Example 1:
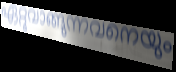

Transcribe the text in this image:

ഏറ്റുവാങ്ങുന്നവനെയും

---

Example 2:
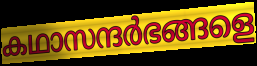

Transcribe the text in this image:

കഥാസന്ദർഭങ്ങളെ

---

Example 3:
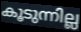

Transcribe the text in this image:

കൂടുന്നില്ല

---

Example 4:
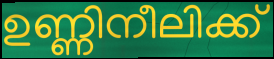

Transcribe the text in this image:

ഉണ്ണിനീലിക്ക്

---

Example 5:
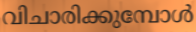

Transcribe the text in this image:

വിചാരിക്കുമ്പോൾ